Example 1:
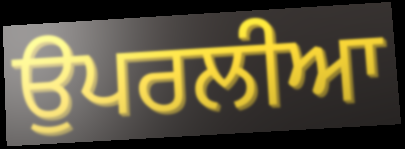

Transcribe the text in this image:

ਉਪਰਲੀਆ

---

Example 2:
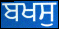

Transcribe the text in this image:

ਬਖਸੁ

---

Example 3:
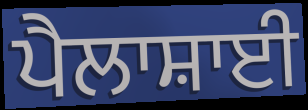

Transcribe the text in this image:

ਪੈਲਾਸ਼ਾਈ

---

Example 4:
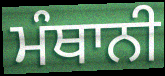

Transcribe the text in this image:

ਮੰਥਾਨੀ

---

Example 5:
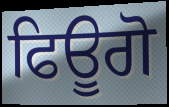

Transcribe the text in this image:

ਫਿਊਗੋ